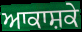
ਆਕਾਸ਼ਕੇ